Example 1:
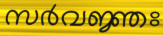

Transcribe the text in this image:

സർവജ്ഞഃ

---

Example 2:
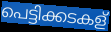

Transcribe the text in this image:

പെട്ടിക്കടകള്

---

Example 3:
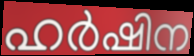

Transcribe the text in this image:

ഹർഷിന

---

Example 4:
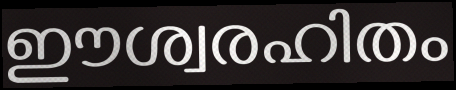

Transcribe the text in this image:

ഈശ്വരഹിതം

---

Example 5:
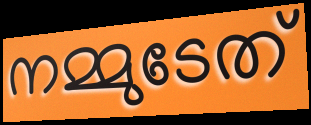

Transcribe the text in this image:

നമ്മുടേത്